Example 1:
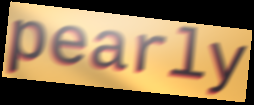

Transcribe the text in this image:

pearly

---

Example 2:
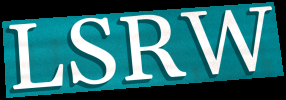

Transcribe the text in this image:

LSRW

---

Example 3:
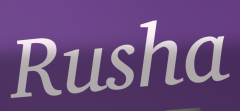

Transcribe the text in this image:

Rusha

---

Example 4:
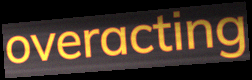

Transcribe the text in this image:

overacting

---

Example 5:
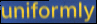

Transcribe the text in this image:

uniformly